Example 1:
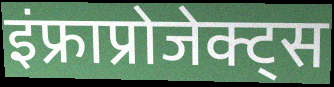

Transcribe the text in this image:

इंफ्राप्रोजेक्ट्स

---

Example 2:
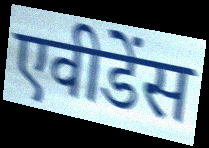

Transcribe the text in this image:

एवीडेंस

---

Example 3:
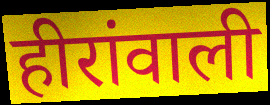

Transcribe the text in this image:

हीरांवाली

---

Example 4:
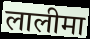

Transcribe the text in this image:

लालीमा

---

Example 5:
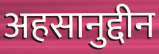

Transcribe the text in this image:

अहसानुद्दीन